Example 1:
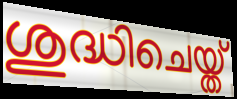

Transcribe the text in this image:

ശുദ്ധിചെയ്ത്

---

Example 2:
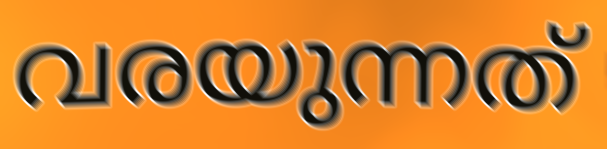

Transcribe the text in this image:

വരയുന്നത്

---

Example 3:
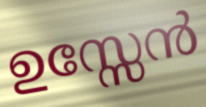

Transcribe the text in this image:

ഉസ്സേൻ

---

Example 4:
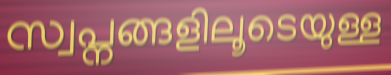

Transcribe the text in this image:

സ്വപ്നങ്ങളിലൂടെയുള്ള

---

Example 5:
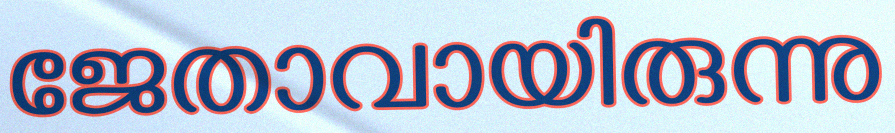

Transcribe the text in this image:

ജേതാവായിരുന്നു